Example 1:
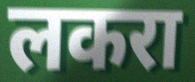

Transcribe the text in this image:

लकरा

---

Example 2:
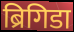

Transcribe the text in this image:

ब्रिगिडा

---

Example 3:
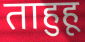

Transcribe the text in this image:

ताहुहू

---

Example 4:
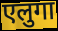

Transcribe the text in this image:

एलुगा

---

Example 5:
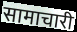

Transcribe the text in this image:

सामाचारी